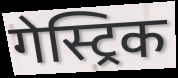
गेस्ट्रिक